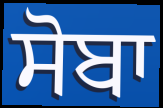
ਸੋਬਾ